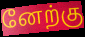
னேற்கு